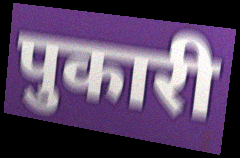
पुकारी